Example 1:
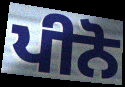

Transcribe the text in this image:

ਪੀਨੋ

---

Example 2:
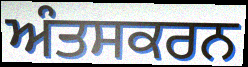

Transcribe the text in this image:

ਅੰਤਸਕਰਨ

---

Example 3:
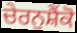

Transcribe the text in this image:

ਚੇਰਨੁਸ਼ੈਂਕੋ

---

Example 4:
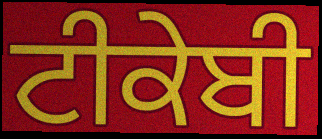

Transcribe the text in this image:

ਟੀਕੇਬੀ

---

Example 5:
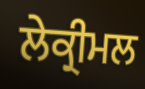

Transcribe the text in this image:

ਲੇਕ੍ਰੀਮਲ